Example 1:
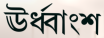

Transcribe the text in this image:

ঊর্ধ্বাংশ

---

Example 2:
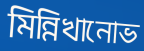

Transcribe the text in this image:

মিন্নিখানোভ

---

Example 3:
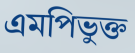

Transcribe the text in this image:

এমপিভুক্ত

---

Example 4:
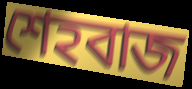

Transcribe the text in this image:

শেহবাজ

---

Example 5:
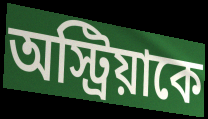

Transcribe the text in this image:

অস্ট্রিয়াকে